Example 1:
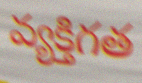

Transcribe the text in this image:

వ్యక్తిగత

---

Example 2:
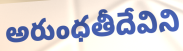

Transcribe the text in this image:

అరుంధతీదేవిని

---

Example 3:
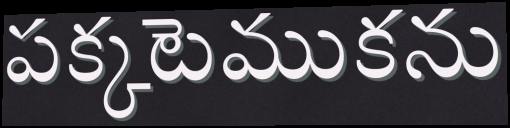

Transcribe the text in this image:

పక్కటెముకను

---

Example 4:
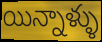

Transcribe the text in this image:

యిన్నాళ్ళు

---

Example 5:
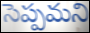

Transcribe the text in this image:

సెప్పమని